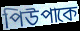
পিউপাকে